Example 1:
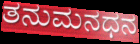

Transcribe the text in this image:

ತನುಮನಧನ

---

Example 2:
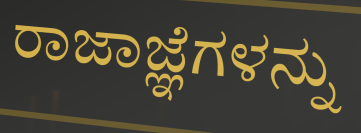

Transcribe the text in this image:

ರಾಜಾಜ್ಞೆಗಳನ್ನು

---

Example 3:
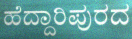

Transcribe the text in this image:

ಹೆದ್ದಾರಿಪುರದ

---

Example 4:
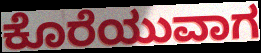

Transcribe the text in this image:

ಕೊರೆಯುವಾಗ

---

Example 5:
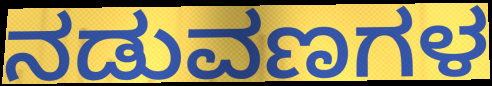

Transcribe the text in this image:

ನಡುವಣಗಳ